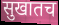
सुखातच